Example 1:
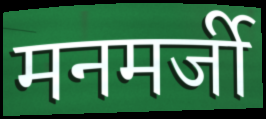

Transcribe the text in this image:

मनमर्जी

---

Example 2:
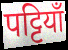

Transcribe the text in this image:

पट्टियाँ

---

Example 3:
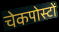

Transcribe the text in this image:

चेकपोस्टों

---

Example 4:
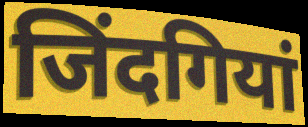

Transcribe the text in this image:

जिंदगियां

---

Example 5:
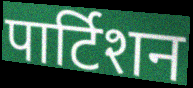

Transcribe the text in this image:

पार्टिशन